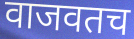
वाजवतच